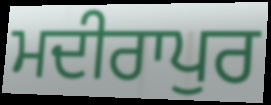
ਮਦੀਰਾਪੁਰ